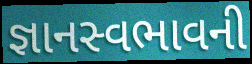
જ્ઞાનસ્વભાવની